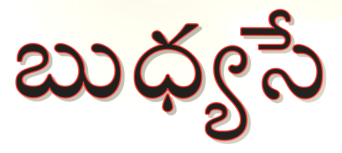
బుధ్యసే